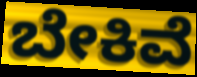
ಬೇಕಿವೆ